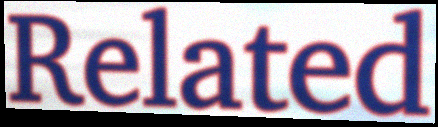
Related